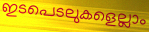
ഇടപെടലുകളെല്ലാം